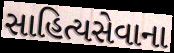
સાહિત્યસેવાના